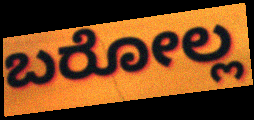
ಬರೋಲ್ಲ